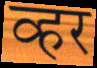
व्हर